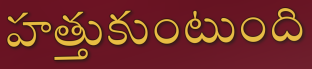
హత్తుకుంటుంది